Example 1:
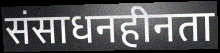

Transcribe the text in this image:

संसाधनहीनता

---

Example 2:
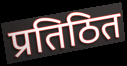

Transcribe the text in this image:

प्रतिठित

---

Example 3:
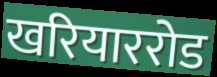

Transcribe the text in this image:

खरियाररोड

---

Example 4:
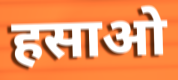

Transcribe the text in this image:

हसाओ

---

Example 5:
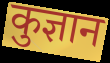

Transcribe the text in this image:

कुज्ञान